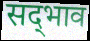
सद्‍भाव